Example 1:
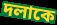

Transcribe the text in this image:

দলাকে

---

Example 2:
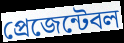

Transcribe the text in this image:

প্রেজেন্টেবল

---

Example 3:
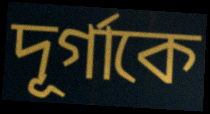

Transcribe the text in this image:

দূর্গাকে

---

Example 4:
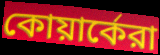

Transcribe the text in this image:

কোয়ার্কেরা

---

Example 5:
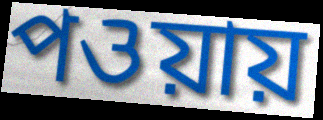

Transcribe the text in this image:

পওয়ায়